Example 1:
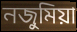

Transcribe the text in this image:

নজুমিয়া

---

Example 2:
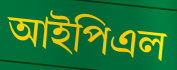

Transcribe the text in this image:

আইপিএল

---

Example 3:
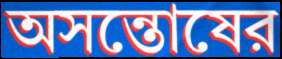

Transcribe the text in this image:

অসন্তোষের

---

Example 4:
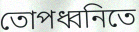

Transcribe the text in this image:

তোপধ্বনিতে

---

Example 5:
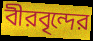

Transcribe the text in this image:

বীরবৃন্দের